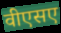
वीएसए